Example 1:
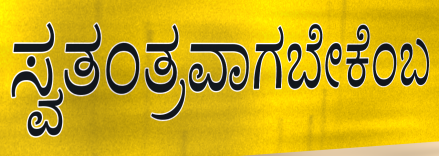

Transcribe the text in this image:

ಸ್ವತಂತ್ರವಾಗಬೇಕೆಂಬ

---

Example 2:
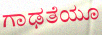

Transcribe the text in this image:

ಗಾಢತೆಯೂ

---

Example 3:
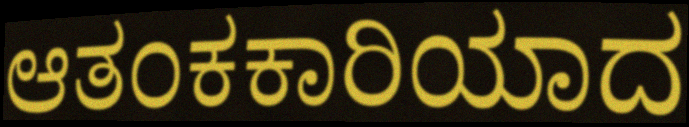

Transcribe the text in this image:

ಆತಂಕಕಾರಿಯಾದ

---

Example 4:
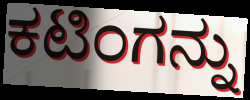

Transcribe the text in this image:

ಕಟಿಂಗನ್ನು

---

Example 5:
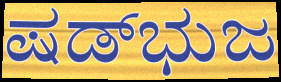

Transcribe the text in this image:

ಷಡ್‌ಭುಜ